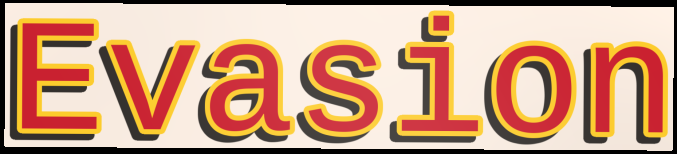
Evasion